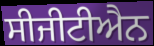
ਸੀਜੀਟੀਐਨ